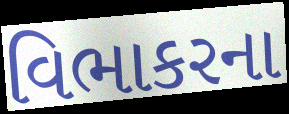
વિભાકરના